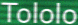
Tololo